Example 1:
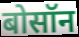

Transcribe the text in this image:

बोसॉन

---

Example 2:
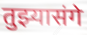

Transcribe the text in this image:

तुझ्यासंगे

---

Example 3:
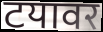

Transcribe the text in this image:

टयावर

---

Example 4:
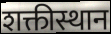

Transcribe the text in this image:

शक्तीस्थान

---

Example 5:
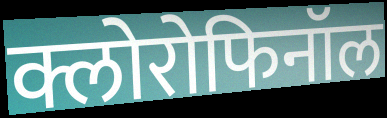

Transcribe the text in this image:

क्लोरोफिनॉल